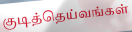
குடித்தெய்வங்கள்